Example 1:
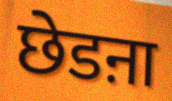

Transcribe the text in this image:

छेडऩा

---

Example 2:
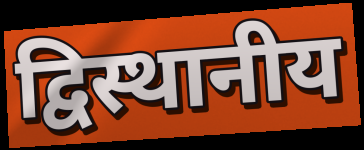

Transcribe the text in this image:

द्विस्थानीय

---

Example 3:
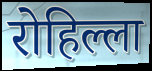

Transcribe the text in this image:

रोहिल्ला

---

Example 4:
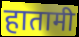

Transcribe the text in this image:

हातामी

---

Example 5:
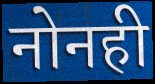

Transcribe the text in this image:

नोनही